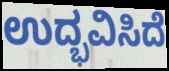
ಉದ್ಭವಿಸಿದೆ